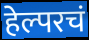
हेल्परचं